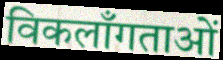
विकलाँगताओं